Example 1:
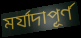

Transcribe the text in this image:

মর্যাদাপূর্ণ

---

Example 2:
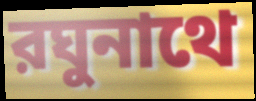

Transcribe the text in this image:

রঘুনাথে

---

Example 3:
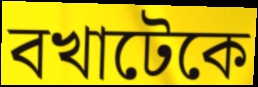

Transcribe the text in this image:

বখাটেকে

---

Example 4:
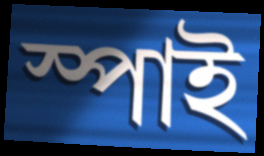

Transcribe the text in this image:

স্পাই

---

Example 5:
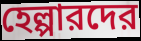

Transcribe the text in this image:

হেল্পারদের